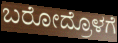
ಬರೋದ್ರೊಳಗೆ